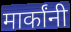
मार्कांनी